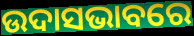
ଉଦାସଭାବରେ